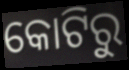
କୋଟିରୁ